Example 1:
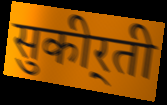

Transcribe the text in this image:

सुकीर्ती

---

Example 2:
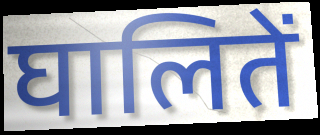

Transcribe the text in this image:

घालितें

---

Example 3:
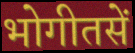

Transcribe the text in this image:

भोगीतसें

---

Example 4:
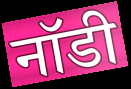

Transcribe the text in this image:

नॉडी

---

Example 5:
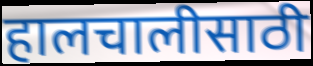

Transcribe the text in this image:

हालचालीसाठी